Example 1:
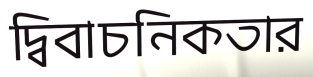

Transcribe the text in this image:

দ্বিবাচনিকতার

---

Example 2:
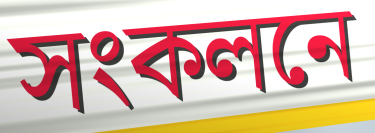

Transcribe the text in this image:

সংকলনে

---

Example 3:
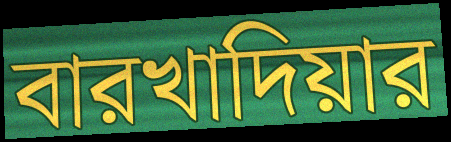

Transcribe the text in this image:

বারখাদিয়ার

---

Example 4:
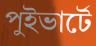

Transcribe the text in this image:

পুইভার্টে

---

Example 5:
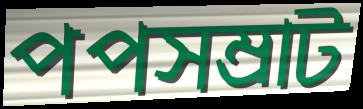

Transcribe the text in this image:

পপসম্রাট